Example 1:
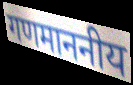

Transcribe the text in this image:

गणमाननीय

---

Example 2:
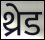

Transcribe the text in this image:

थ्रेड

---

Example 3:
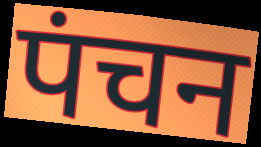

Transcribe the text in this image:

पंचन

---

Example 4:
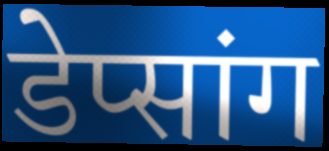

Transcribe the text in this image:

डेप्सांग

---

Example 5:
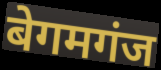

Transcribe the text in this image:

बेगमगंज